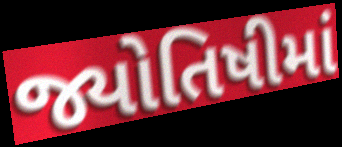
જ્યોતિષીમાં